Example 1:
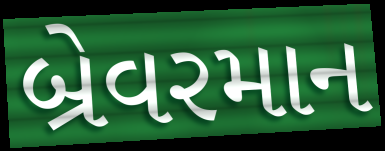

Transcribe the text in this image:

બ્રેવરમાન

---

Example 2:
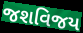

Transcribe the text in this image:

જશવિજય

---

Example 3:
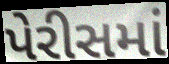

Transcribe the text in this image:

પેરીસમાં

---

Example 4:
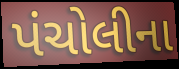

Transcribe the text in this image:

પંચોલીના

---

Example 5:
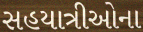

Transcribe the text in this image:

સહયાત્રીઓના